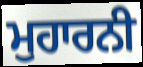
ਮੁਹਾਰਨੀ